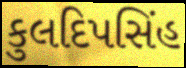
કુલદિપસિંહ